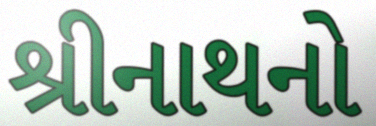
શ્રીનાથનો